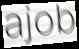
ajob